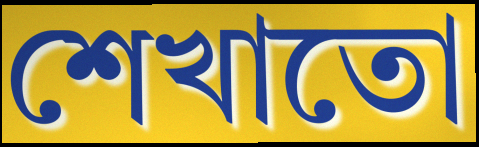
শেখাতো